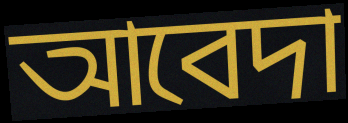
আবেদা